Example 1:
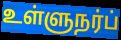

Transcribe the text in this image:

உள்ளுநர்ப்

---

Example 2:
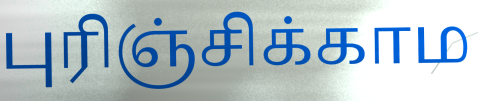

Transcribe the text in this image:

புரிஞ்சிக்காம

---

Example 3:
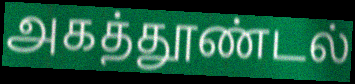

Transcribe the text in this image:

அகத்தூண்டல்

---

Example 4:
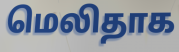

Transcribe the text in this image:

மெலிதாக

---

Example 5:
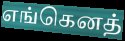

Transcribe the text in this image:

எங்கெனத்